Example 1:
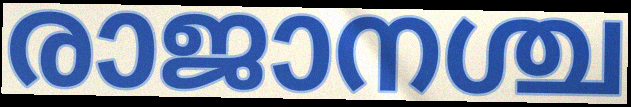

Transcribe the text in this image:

രാജാനശ്ച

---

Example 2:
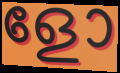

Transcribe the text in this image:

ളോ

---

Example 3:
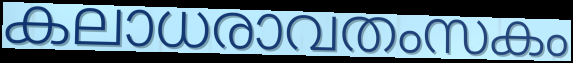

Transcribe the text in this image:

കലാധരാവതംസകം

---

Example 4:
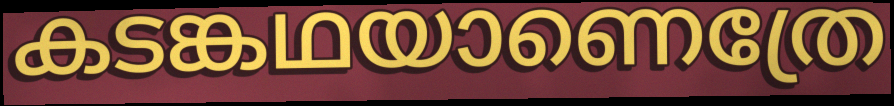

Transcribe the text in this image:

കടങ്കഥയാണെത്രേ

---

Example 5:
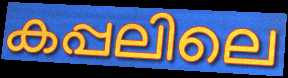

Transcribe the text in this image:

കപ്പലിലെ